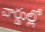
వార్డుల్లో